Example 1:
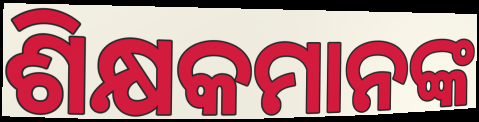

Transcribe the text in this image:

ଶିକ୍ଷକମାନଙ୍କ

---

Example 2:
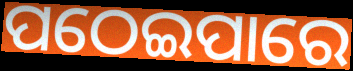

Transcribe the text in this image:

ପଠେଇପାରେ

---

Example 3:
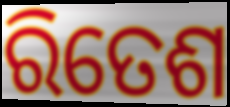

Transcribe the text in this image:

ରିତେଶ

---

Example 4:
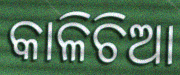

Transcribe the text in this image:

କାଳିଚିଆ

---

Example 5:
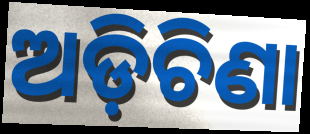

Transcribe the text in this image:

ଅଡ଼ିଚିଣା